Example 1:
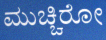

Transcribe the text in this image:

ಮುಚ್ಚಿರೋ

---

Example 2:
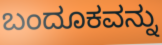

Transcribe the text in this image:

ಬಂದೂಕವನ್ನು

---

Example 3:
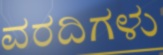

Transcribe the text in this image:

ವರದಿಗಳು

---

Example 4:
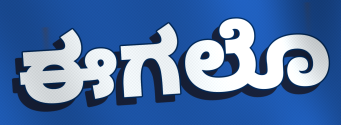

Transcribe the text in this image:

ಈಗಲೊ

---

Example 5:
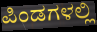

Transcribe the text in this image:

ಪಿಂಡಗಳಲ್ಲಿ